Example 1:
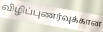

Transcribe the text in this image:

விழிப்புணர்வுக்கான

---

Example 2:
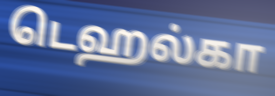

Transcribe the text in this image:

டெஹல்கா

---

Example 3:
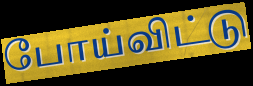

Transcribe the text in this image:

போய்விட்டு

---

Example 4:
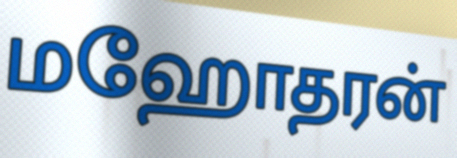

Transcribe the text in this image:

மஹோதரன்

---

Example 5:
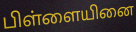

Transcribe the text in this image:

பிள்ளையினை